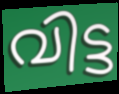
വിട്ട